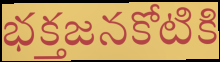
భక్తజనకోటికి